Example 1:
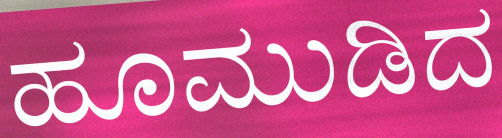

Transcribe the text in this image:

ಹೂಮುಡಿದ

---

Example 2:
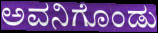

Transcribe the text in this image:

ಅವನಿಗೊಂಡು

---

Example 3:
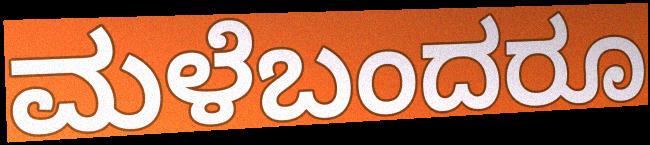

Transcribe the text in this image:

ಮಳೆಬಂದರೂ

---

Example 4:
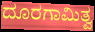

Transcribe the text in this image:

ದೂರಗಾಮಿತ್ವ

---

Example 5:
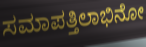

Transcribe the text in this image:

ಸಮಾಪತ್ತಿಲಾಭಿನೋ